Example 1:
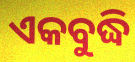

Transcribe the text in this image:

ଏକବୁଦ୍ଧି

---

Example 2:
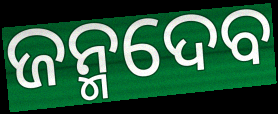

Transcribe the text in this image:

ଜନ୍ମଦେବ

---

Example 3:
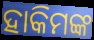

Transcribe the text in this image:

ହାକିମଙ୍କ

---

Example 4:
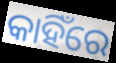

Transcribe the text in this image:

କାହିଁରେ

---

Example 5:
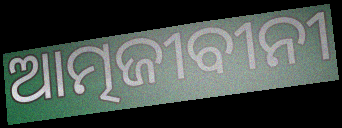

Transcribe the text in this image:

ଆତ୍ମଜୀବୀନୀ